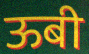
ऊबी